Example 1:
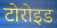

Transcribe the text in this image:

टोरोइड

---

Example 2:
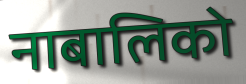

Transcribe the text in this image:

नाबालिको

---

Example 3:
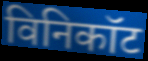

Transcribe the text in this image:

विनिकॉट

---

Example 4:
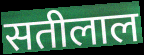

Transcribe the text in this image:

सतीलाल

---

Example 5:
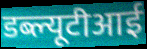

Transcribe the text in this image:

डब्ल्यूटीआई